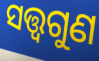
ସତ୍ତ୍ୱଗୁଣ